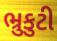
ભ્રુકુટી